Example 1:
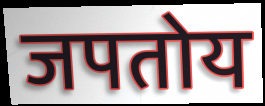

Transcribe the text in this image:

जपतोय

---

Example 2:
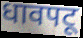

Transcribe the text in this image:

धावपटू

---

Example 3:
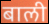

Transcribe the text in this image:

बाली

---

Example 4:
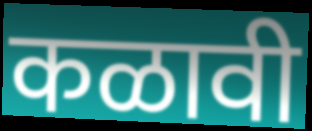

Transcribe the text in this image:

कळावी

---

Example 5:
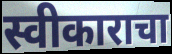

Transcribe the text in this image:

स्वीकाराचा